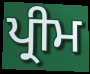
ਪ੍ਰੀਮ